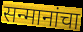
सन्मानांचा